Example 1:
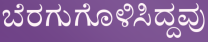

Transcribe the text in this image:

ಬೆರಗುಗೊಳಿಸಿದ್ದವು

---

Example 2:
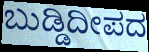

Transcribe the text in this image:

ಬುಡ್ಡಿದೀಪದ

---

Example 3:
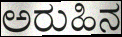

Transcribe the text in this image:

ಅರುಹಿನ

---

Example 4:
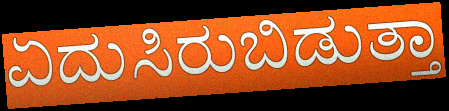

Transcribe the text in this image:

ಏದುಸಿರುಬಿಡುತ್ತಾ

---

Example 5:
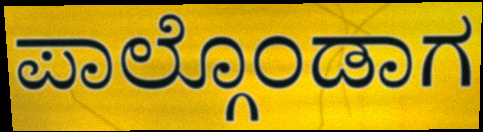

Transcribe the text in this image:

ಪಾಲ್ಗೊಂಡಾಗ